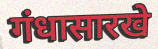
गंधासारखे